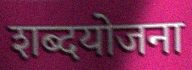
शब्दयोजना